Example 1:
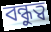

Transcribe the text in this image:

বন্ধুত্ব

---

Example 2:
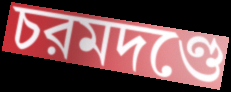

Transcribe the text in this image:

চরমদণ্ডে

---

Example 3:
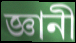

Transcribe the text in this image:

জ্ঞানী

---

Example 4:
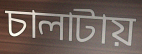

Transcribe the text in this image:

চালাটায়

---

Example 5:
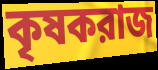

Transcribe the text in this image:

কৃষকরাজ